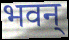
भवन्